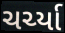
ચર્ચ્યા